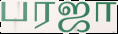
பரஜா